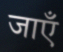
जाएँ